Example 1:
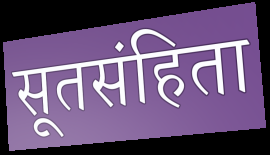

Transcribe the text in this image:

सूतसंहिता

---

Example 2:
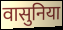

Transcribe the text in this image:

वासुनिया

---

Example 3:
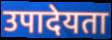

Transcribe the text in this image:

उपादेयता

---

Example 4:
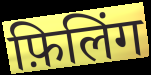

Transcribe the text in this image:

फ़िलिंग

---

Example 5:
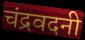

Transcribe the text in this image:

चंद्रवदनी